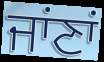
ਜਾਂਣਾਂ